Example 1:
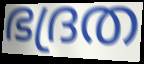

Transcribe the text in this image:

ഭദ്രത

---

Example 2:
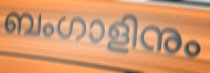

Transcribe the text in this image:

ബംഗാളിനും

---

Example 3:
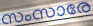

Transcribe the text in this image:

സംസാരേ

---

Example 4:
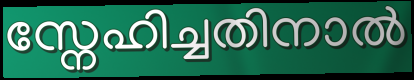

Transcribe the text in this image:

സ്നേഹിച്ചതിനാൽ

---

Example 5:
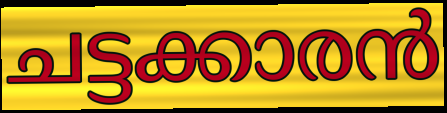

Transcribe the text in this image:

ചട്ടക്കാരൻ